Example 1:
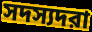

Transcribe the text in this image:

সদস্যদরা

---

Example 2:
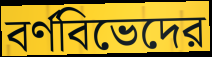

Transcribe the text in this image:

বর্ণবিভেদের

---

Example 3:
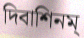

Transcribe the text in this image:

দিবাশিনম্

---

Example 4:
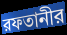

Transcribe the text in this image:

রফতানীর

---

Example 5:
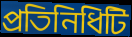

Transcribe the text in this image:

প্রতিনিধিটি